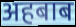
अहबाब